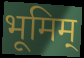
भूमिम्